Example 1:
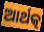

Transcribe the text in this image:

ଆର୍ଥତ୍କ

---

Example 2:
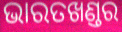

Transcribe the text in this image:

ଭାରତଖଣ୍ଡର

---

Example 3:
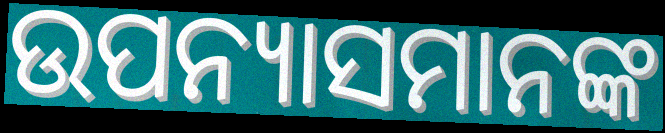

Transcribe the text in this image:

ଉପନ୍ୟାସମାନଙ୍କ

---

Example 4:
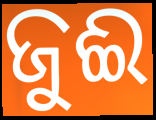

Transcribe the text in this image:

ଜୁଈ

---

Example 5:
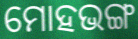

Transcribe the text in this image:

ମୋହଭଙ୍ଗ